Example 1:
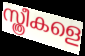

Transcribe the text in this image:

സ്ത്രീകളെ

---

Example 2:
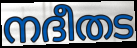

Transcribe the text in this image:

നദീതട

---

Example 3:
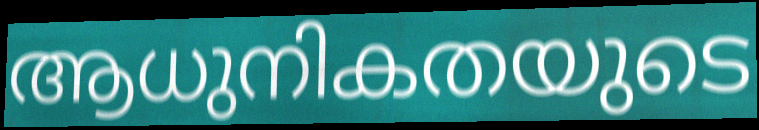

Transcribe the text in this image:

ആധുനികതയുടെ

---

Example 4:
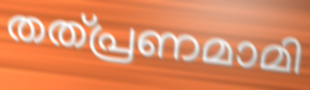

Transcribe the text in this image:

തത്പ്രണമാമി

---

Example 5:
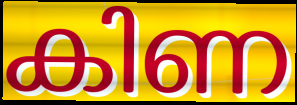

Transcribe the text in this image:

കിണ